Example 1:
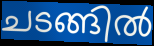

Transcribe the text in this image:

ചടങ്ങിൽ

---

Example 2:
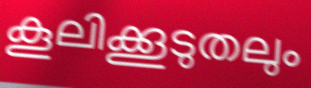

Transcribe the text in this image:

കൂലിക്കൂടുതലും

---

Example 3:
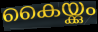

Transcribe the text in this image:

കൈയ്ക്കും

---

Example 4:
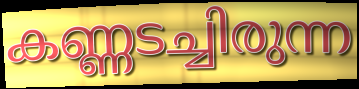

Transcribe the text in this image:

കണ്ണടച്ചിരുന്ന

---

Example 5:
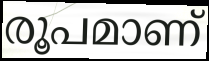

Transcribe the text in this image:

രൂപമാണ്